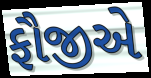
ફૌજીએ